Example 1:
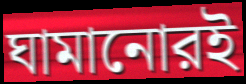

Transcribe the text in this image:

ঘামানোরই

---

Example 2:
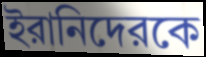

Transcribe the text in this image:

ইরানিদেরকে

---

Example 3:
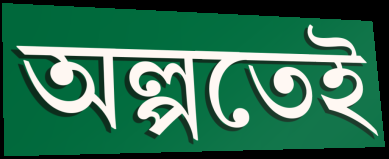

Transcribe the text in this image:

অল্পতেই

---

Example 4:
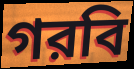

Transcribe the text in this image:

গরবি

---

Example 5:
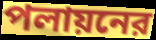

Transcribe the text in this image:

পলায়নের